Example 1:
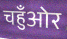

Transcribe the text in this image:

चहुँओर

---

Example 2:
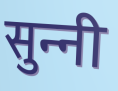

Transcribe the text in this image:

सुन्नी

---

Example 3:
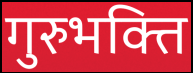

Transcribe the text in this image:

गुरुभक्ति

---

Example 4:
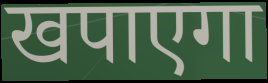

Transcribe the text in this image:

खपाएगा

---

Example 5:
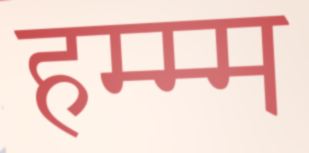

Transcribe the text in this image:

हम्म्म